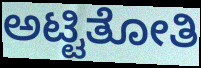
ಅಟ್ಟಿತೋತಿ